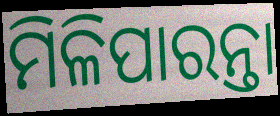
ମିଳିପାରନ୍ତା